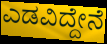
ಎಡವಿದ್ದೇನೆ